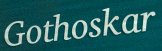
Gothoskar